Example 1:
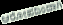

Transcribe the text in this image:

ಆರೋಪದಿಂದಾಗಿ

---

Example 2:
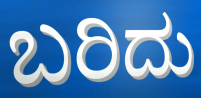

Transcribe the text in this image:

ಬರಿದು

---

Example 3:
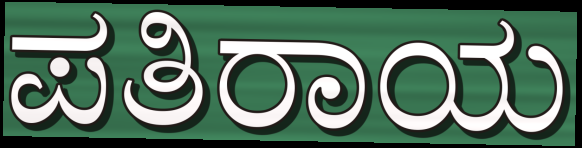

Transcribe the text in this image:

ಪತಿರಾಯ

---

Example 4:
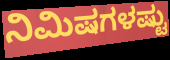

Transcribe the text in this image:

ನಿಮಿಷಗಳಷ್ಟು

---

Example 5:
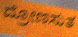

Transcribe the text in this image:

ದ್ರೋಣಸುತ